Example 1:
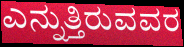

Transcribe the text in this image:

ಎನ್ನುತ್ತಿರುವವರ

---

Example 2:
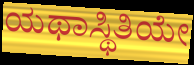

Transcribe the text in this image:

ಯಥಾಸ್ಥಿತಿಯೇ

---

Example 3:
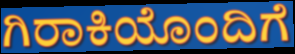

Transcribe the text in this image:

ಗಿರಾಕಿಯೊಂದಿಗೆ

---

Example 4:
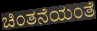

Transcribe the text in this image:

ಚಿಂತನೆಯಂತೆ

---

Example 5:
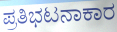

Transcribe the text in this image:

ಪ್ರತಿಭಟನಾಕಾರ